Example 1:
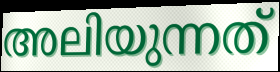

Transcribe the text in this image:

അലിയുന്നത്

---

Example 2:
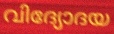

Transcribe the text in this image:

വിദ്യോദയ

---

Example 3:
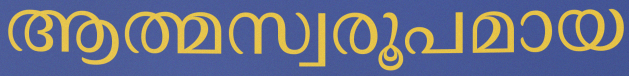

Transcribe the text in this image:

ആത്മസ്വരൂപമായ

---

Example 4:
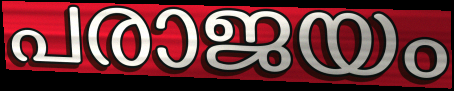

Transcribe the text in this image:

പരാജയം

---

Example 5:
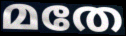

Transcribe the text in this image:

മതേ